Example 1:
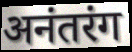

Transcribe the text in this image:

अनंतरंग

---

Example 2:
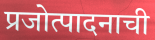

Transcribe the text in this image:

प्रजोत्पादनाची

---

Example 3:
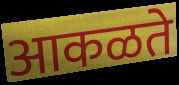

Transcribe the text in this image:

आकळते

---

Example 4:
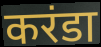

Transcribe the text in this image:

करंडा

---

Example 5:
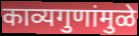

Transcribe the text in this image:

काव्यगुणांमुळे